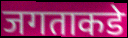
जगताकडे